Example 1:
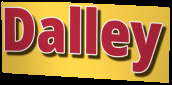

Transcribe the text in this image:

Dalley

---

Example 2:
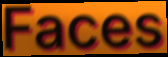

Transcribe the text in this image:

Faces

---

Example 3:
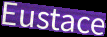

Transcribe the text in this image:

Eustace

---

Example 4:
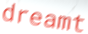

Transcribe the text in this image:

dreamt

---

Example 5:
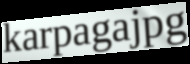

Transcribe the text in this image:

karpagajpg